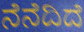
ನೆನೆದಿದೆ